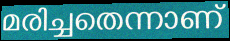
മരിച്ചതെന്നാണ്